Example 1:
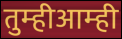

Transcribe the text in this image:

तुम्हीआम्ही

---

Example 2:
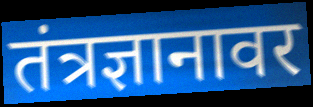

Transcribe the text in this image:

तंत्रज्ञानावर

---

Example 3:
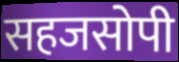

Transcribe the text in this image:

सहजसोपी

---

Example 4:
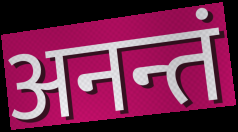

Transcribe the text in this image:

अनन्तं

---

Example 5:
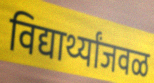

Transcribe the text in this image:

विद्यार्थ्यांजवळ